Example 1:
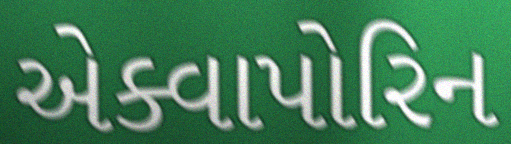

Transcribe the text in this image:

એક્વાપોરિન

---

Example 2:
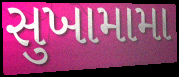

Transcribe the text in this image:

સુખામામા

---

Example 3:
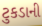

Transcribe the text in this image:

ટુકડાની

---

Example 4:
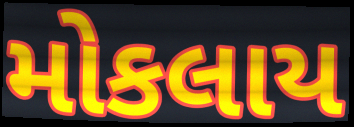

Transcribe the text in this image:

મોકલાય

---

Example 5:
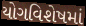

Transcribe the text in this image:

યોગવિશેષમાં